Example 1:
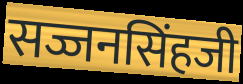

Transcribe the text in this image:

सज्जनसिंहजी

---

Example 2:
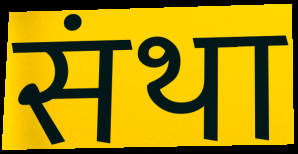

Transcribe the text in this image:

संथा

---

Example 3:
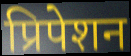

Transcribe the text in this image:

प्रिपेशन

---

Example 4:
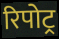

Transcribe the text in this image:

रिपोट्र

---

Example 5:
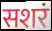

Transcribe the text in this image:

सशरं